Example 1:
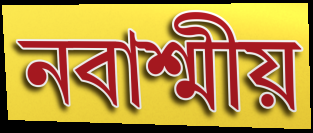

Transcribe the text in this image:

নবাশ্মীয়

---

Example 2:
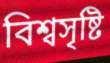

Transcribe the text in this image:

বিশ্বসৃষ্টি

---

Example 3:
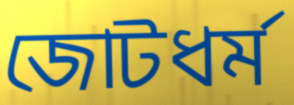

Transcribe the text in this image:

জোটধর্ম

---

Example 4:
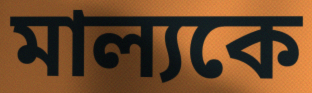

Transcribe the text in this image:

মাল্যকে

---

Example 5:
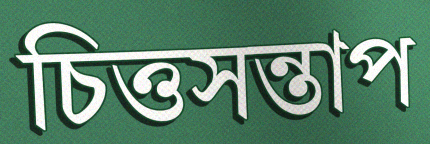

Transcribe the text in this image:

চিত্তসন্তাপ